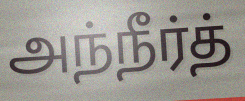
அந்நீர்த்